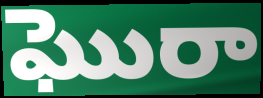
ఘొరా